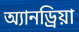
অ্যানড্রিয়া